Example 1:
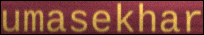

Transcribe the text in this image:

umasekhar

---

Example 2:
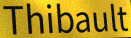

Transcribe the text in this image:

Thibault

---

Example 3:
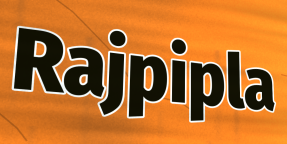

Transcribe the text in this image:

Rajpipla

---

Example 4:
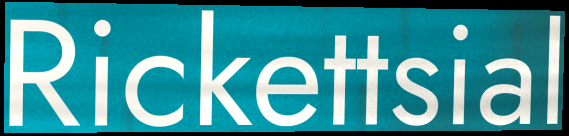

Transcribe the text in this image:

Rickettsial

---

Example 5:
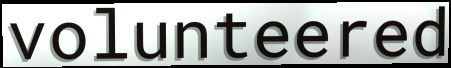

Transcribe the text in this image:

volunteered